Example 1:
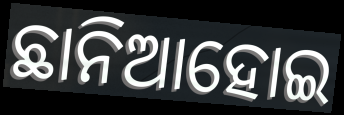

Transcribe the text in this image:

ଛାନିଆହୋଇ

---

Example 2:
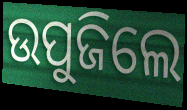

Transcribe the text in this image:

ଉପୁଜିଲେ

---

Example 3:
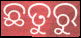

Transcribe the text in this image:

ଛତୁରୁ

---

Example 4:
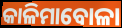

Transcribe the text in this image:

କାଳିମାବୋଳା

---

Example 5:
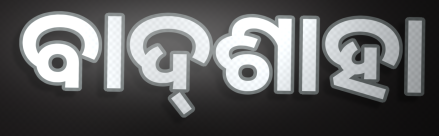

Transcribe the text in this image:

ବାଦ୍‌ଶାହା